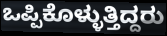
ಒಪ್ಪಿಕೊಳ್ಳುತ್ತಿದ್ದರು